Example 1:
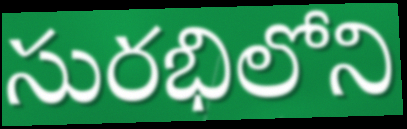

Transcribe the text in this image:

సురభిలోని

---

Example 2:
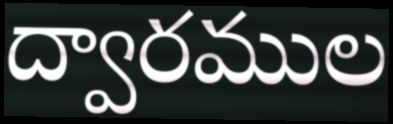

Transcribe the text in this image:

ద్వారముల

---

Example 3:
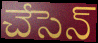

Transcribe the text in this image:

చేసెన్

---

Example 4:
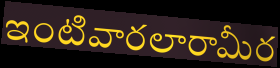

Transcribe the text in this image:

ఇంటివారలారామీర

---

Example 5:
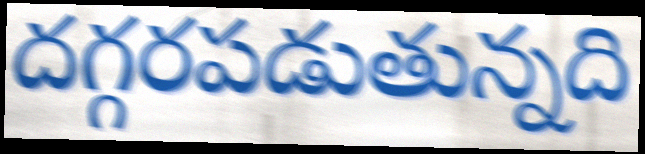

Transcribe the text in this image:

దగ్గరపడుతున్నది